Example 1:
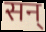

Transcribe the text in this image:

सन्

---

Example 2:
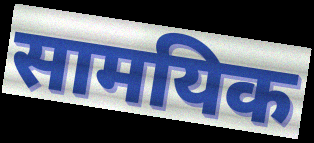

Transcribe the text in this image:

सामयिक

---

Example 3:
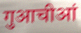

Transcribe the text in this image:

गुआचीआं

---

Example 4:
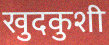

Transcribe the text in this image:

खुदकुशी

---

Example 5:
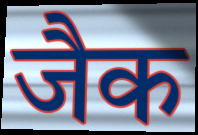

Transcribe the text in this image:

जैक